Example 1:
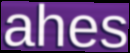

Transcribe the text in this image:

ahes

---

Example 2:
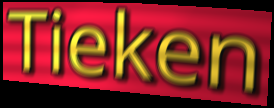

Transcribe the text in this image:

Tieken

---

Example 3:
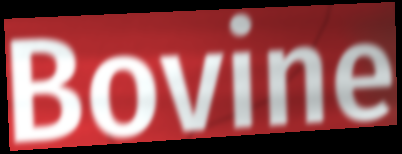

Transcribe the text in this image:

Bovine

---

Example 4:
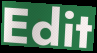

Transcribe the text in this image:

Edit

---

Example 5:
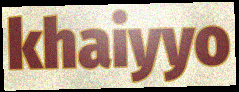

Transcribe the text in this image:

khaiyyo